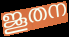
ജൂതന